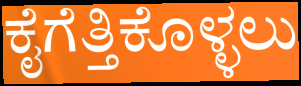
ಕೈಗೆತ್ತಿಕೊಳ್ಳಲು